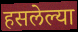
हसलेल्या